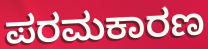
ಪರಮಕಾರಣ